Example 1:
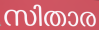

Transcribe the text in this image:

സിതാര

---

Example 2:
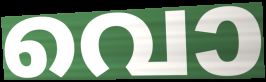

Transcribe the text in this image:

വൊ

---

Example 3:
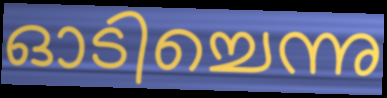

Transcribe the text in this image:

ഓടിച്ചെന്നു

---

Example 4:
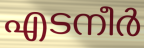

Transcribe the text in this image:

എടനീർ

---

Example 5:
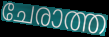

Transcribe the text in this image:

ചേരാത്ത